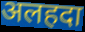
अलहदा